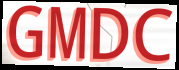
GMDC